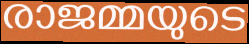
രാജമ്മയുടെ